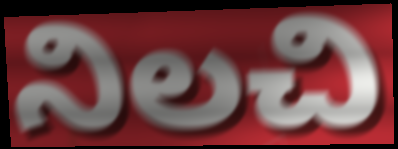
నిలచి